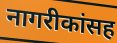
नागरीकांसह